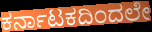
ಕರ್ನಾಟಕದಿಂದಲೇ